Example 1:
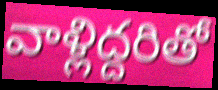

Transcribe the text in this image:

వాళ్లిద్దరితో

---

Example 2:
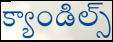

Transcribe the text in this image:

క్యాండిల్స్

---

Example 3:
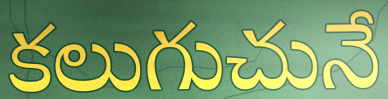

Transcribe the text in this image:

కలుగుచునే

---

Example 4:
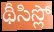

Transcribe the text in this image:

థీసిస్లో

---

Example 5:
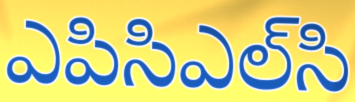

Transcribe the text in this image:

ఎపిసిఎల్‌సి